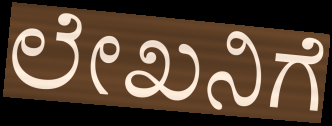
ಲೇಖನಿಗೆ